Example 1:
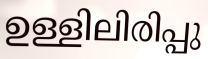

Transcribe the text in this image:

ഉള്ളിലിരിപ്പു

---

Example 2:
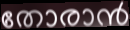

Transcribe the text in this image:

തോരാൻ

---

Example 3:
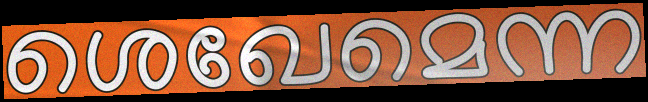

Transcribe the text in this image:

ശെഖേമെന്ന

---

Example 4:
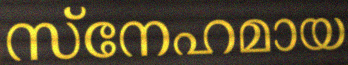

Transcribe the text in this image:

സ്നേഹമായ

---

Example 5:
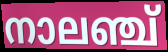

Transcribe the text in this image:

നാലഞ്ച്